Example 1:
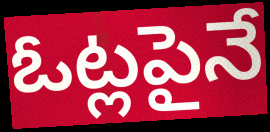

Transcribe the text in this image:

ఓట్లపైనే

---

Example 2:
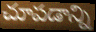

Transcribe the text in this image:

చూపడాన్ని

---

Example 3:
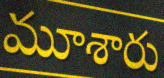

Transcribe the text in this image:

మూశారు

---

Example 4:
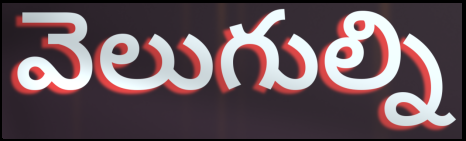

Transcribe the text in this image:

వెలుగుల్ని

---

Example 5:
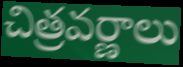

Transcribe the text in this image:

చిత్రవర్ణాలు